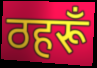
ठहरूँ